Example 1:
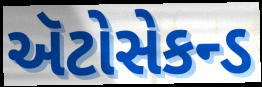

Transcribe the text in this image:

ઍટોસેકન્ડ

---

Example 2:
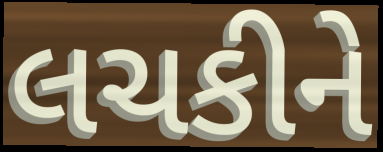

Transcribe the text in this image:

લચકીને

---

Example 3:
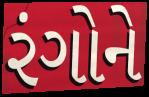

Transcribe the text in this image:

રંગોને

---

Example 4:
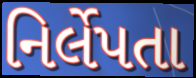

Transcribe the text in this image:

નિર્લેપતા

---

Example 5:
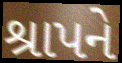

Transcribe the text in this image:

શ્રાપને